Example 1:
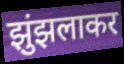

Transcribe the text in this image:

झुंझलाकर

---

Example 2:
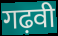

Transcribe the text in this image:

गढ़वी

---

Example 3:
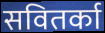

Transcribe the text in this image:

सवितर्का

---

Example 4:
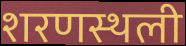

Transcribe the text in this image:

शरणस्थली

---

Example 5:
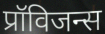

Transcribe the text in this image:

प्रॉविजन्स